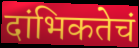
दांभिकतेचं